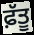
ਫ਼ੱਤੂ